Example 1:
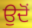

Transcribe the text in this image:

ਉਦੋੰ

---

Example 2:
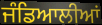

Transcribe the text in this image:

ਜੰਡਿਆਲੀਆਂ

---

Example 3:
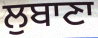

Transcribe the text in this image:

ਲੁਬਾਣਾ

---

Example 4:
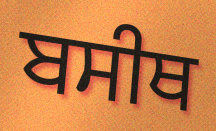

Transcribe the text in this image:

ਬਸੀਥ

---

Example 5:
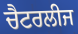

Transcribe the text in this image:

ਚੈਟਰਲੀਜ